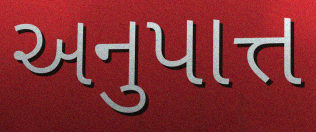
અનુપાત્ત